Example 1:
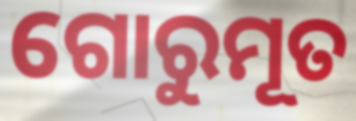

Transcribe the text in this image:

ଗୋରୁମୂତ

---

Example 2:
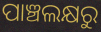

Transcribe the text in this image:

ପାଞ୍ଚଲକ୍ଷରୁ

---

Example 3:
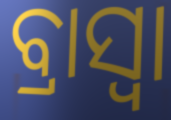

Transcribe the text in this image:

ବ୍ରାସ୍ବା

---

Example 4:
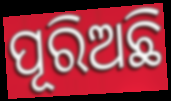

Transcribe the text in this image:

ପୂରିଅଛି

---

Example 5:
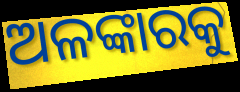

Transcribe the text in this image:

ଅଳଙ୍କାରକୁ